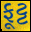
ફૂટ્ટ